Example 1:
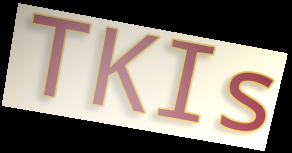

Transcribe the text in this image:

TKIs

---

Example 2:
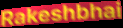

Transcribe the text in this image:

Rakeshbhai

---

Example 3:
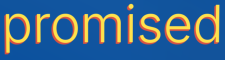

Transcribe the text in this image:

promised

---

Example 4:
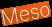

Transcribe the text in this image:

Meso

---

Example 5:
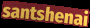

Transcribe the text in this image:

santshenai